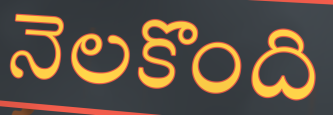
నెలకొంది